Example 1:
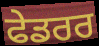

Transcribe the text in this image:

ਫੇਡਰਰ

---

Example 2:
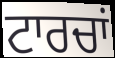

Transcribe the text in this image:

ਟਾਰਚਾਂ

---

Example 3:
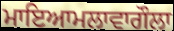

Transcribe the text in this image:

ਮਾਇਆਮਲਾਵਾਗੌਲਾ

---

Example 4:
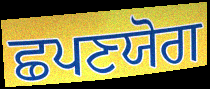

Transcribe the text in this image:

ਛਪਣਯੋਗ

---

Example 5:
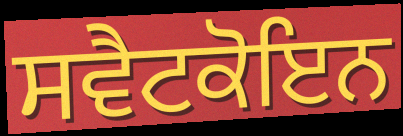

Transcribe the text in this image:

ਸਵੈਟਕੋਇਨ